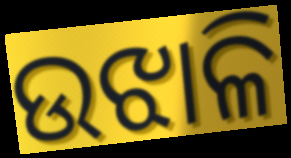
ଉଝାଳି